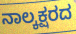
ನಾಲ್ಕಕ್ಷರದ